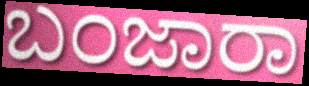
ಬಂಜಾರಾ